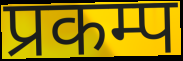
प्रकम्प